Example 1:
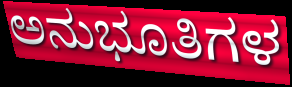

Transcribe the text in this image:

ಅನುಭೂತಿಗಳ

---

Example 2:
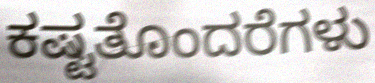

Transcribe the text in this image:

ಕಷ್ಟತೊಂದರೆಗಳು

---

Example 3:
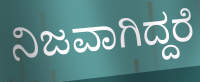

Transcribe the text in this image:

ನಿಜವಾಗಿದ್ದರೆ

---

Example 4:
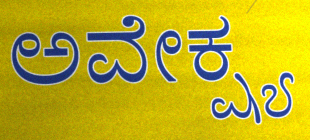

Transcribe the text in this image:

ಅವೇಕ್ಷ್ಯ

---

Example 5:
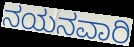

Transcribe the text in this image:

ನಯನವಾರಿ